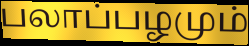
பலாப்பழமும்